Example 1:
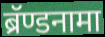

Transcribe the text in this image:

ब्रॅण्डनामा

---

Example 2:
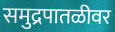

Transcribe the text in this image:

समुद्रपातळीवर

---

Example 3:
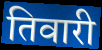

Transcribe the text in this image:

तिवारी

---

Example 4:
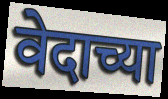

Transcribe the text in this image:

वेदाच्या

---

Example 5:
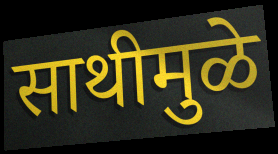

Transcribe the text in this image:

साथीमुळे